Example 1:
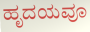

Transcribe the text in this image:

ಹೃದಯವೂ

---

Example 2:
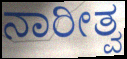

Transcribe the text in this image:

ನಾರೀತ್ವ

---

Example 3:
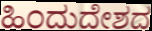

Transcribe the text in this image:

ಹಿಂದುದೇಶದ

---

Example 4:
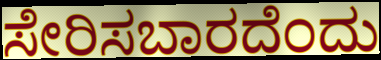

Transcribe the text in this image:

ಸೇರಿಸಬಾರದೆಂದು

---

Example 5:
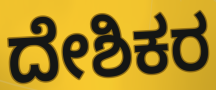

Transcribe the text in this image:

ದೇಶಿಕರ